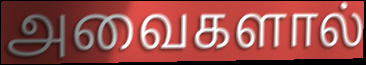
அவைகளால்